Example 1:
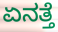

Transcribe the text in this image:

ಏನತ್ತೆ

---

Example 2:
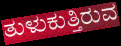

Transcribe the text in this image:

ತುಳುಕುತ್ತಿರುವ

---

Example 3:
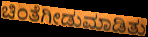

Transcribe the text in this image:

ಚಿಂತೆಗೀಡುಮಾಡಿತು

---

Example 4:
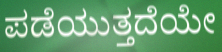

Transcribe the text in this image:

ಪಡೆಯುತ್ತದೆಯೇ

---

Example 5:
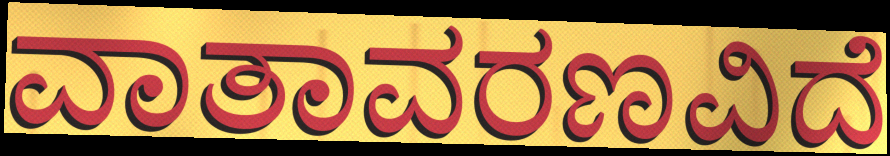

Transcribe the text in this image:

ವಾತಾವರಣವಿದೆ